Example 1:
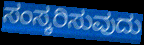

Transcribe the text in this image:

ಸಂಸ್ಕರಿಸುವುದು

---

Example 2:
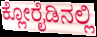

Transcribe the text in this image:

ಕ್ಲೋರೈಡಿನಲ್ಲಿ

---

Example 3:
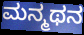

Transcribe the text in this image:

ಮನ್ಮಥನ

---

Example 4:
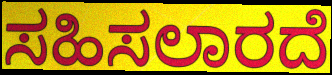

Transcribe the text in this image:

ಸಹಿಸಲಾರದೆ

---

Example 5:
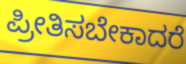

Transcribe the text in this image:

ಪ್ರೀತಿಸಬೇಕಾದರೆ